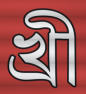
খ্ৰী